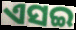
ଏସଇ